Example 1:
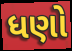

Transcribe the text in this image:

ધણો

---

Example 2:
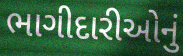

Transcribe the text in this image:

ભાગીદારીઓનું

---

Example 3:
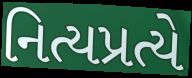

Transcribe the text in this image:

નિત્યપ્રત્યે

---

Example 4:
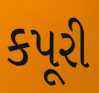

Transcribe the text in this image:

કપૂરી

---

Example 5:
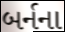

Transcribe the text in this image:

બર્નના